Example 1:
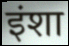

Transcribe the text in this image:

इंशा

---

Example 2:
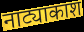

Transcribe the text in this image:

नाट्याकाश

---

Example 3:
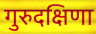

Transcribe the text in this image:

गुरुदक्षिणा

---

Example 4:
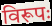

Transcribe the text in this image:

विरूपः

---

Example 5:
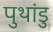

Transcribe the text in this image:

पुथांडु